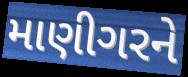
માણીગરને